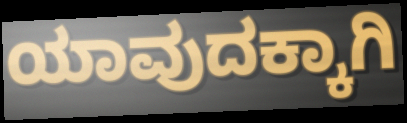
ಯಾವುದಕ್ಕಾಗಿ